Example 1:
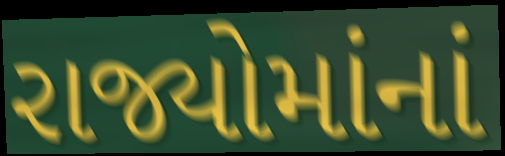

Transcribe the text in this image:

રાજ્યોમાંનાં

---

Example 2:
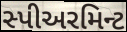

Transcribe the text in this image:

સ્પીઅરમિન્ટ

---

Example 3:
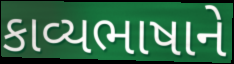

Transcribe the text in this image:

કાવ્યભાષાને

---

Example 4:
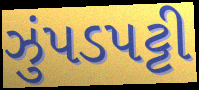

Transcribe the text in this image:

ઝુંપડપટ્ટી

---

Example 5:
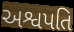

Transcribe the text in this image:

અશ્વપતિ